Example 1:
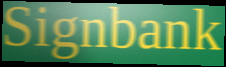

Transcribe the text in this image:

Signbank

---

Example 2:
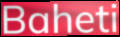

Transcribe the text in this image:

Baheti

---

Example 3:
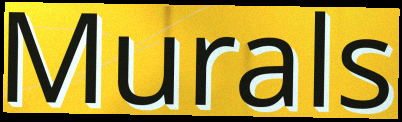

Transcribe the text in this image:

Murals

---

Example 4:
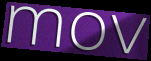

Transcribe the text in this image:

mov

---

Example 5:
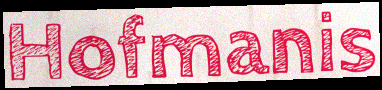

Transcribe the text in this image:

Hofmanis